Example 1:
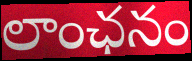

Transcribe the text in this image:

లాంఛనం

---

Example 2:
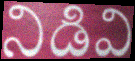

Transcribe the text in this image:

నిడివి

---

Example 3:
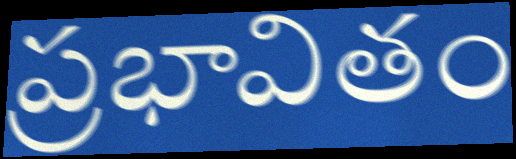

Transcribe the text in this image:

ప్రభావితం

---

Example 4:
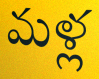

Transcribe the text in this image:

మళ్ల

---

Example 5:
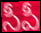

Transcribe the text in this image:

సీపీ